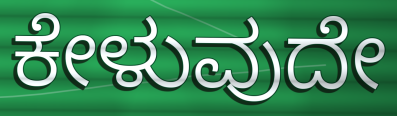
ಕೇಳುವುದೇ